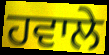
ਹਵਾਲੇ